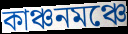
কাঞ্চনমঞ্চে